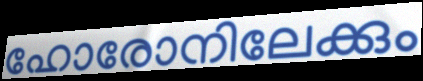
ഹോരോനിലേക്കും